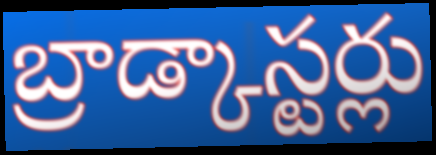
బ్రాడ్కాస్టర్లు